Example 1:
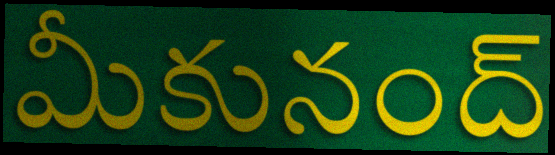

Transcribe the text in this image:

మీకునంద్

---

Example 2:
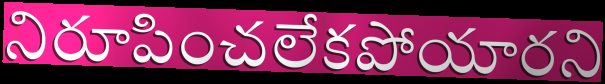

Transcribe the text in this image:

నిరూపించలేకపోయారని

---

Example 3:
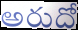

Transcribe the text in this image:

అరుదో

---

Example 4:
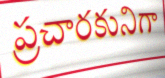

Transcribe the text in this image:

ప్రచారకునిగా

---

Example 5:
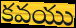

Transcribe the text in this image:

కవయు